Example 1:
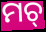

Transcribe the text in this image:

ମଚ୍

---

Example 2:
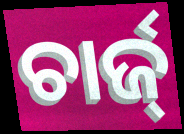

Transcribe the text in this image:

ଚାର୍ଜ୍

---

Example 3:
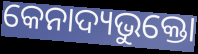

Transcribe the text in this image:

କେନାଦ୍ୟଭୁକ୍ତୋ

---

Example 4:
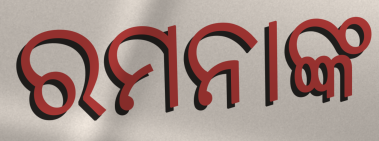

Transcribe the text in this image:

ରମନାଙ୍କ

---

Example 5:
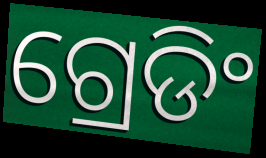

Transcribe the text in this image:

ଗ୍ରେଡିଂ